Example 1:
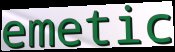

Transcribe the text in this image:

emetic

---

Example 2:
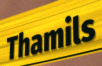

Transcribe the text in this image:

Thamils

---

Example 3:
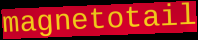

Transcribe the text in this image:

magnetotail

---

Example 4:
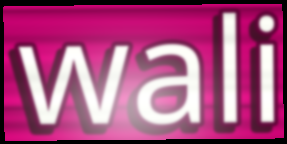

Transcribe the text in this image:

wali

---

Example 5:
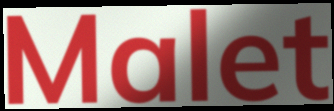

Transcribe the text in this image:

Malet